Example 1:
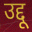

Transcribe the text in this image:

उद्दू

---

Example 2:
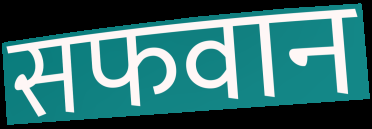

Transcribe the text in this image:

सफवान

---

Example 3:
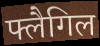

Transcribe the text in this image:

फ्लैगिल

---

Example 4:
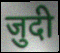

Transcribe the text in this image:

जुदी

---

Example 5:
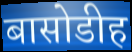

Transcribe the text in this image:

बासोडीह